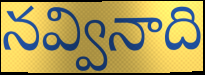
నవ్వినాది